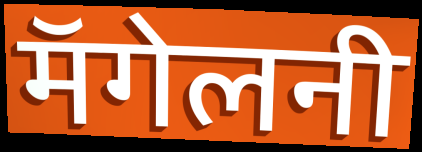
मॅगेलनी